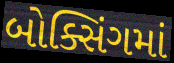
બોક્સિંગમાં